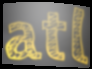
atl